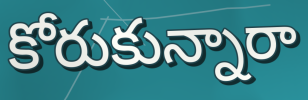
కోరుకున్నారా